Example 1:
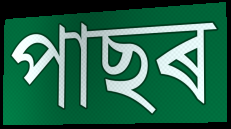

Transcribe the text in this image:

পাছৰ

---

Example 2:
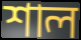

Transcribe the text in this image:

শাল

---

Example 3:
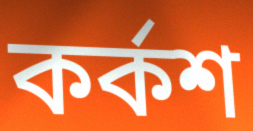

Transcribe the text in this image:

কৰ্কশ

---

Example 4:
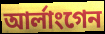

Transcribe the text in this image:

আৰ্লাংগেন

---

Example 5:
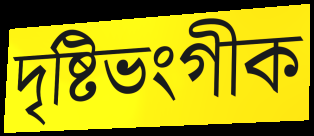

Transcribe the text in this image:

দৃষ্টিভংগীক